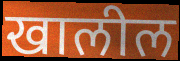
खालील